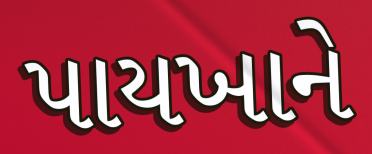
પાયખાને